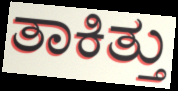
ತಾಕಿತ್ತು